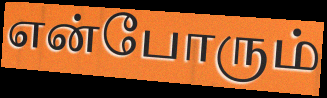
என்போரும்